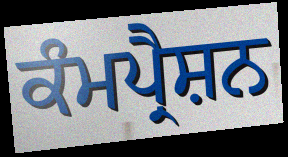
ਕੰਮਪ੍ਰੈਸ਼ਨ